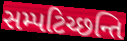
સમ્પટિચ્છન્તિ